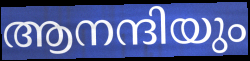
ആനന്ദിയും